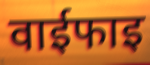
वाईफाइ